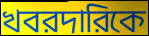
খবরদারিকে